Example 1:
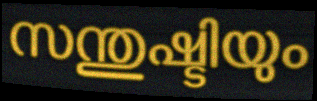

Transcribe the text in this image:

സന്തുഷ്ടിയും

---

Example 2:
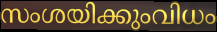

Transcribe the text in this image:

സംശയിക്കുംവിധം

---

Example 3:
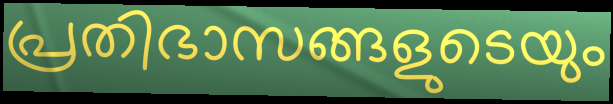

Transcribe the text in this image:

പ്രതിഭാസങ്ങളുടെയും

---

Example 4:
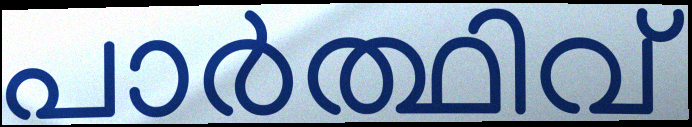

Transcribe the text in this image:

പാർത്ഥിവ്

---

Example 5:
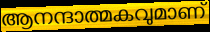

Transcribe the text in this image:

ആനന്ദാത്മകവുമാണ്